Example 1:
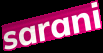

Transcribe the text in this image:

sarani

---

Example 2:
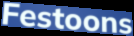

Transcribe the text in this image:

Festoons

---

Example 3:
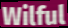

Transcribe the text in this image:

Wilful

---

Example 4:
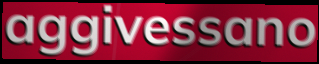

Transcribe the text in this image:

aggivessano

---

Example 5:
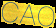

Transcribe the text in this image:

CAO